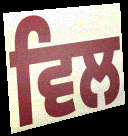
ਵਿਲ